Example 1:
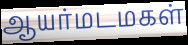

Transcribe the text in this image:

ஆயர்மடமகள்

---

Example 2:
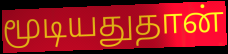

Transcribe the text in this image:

மூடியதுதான்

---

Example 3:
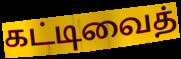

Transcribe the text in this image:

கட்டிவைத்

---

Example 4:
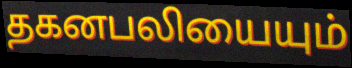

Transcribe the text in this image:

தகனபலியையும்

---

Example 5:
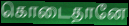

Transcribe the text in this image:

கொடைதானே